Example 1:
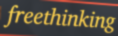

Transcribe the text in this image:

freethinking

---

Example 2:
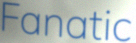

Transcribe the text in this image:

Fanatic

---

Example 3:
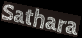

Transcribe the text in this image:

Sathara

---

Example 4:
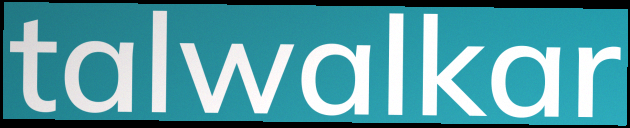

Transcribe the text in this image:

talwalkar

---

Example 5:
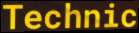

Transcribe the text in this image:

Technic